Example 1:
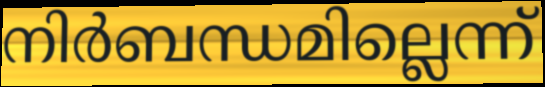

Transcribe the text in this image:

നിർബന്ധമില്ലെന്ന്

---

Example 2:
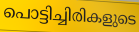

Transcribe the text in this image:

പൊട്ടിച്ചിരികളുടെ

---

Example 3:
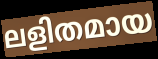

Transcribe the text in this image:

ലളിതമായ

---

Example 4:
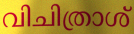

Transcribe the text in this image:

വിചിത്രാശ്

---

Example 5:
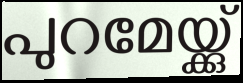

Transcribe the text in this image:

പുറമേയ്ക്കു്